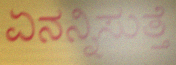
ಏನನ್ನಿಸುತ್ತೆ